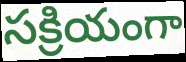
సక్రియంగా